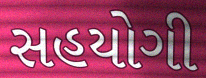
સહયોગી